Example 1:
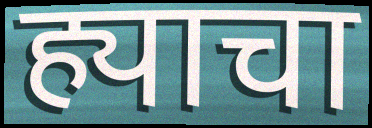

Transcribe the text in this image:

ह्याचा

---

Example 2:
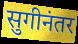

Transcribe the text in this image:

सुगीनंतर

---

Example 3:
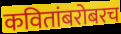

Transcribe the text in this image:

कवितांबरोबरच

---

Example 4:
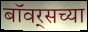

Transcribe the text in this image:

बॉवर्सच्या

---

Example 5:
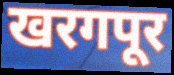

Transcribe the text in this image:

खरगपूर